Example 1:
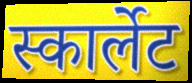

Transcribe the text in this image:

स्कार्लेट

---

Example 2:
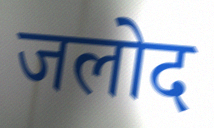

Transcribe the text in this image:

जलोद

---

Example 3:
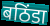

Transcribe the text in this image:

बठिंडा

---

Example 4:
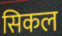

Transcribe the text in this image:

सिकल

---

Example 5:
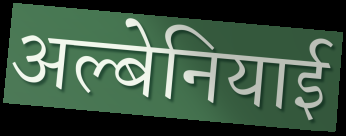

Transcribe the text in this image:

अल्बेनियाई